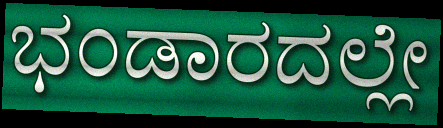
ಭಂಡಾರದಲ್ಲೇ